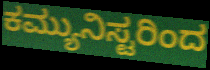
ಕಮ್ಯುನಿಸ್ಟರಿಂದ